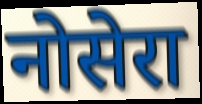
नोसेरा